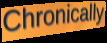
Chronically